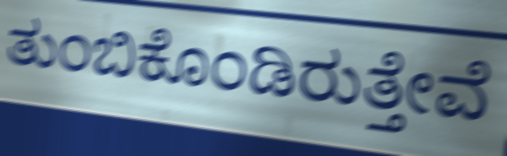
ತುಂಬಿಕೊಂಡಿರುತ್ತೇವೆ